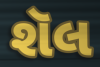
શૅલ